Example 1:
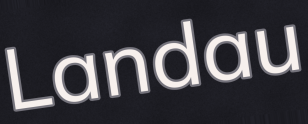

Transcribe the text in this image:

Landau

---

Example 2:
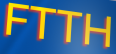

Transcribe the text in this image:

FTTH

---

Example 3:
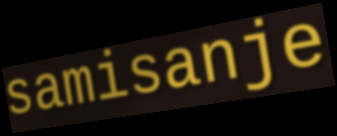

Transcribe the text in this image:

samisanje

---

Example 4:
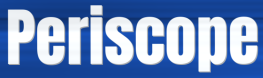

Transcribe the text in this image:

Periscope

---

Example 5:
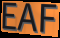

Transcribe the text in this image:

EAF